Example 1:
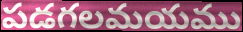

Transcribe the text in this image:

పడగలమయము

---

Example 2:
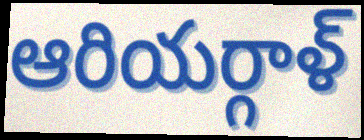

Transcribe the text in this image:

ఆరియర్గాళ్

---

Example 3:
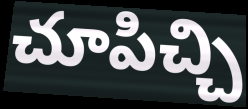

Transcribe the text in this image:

చూపిచ్చి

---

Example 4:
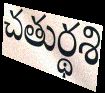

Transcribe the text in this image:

చతుర్థశి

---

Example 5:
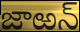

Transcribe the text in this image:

జాఱన్